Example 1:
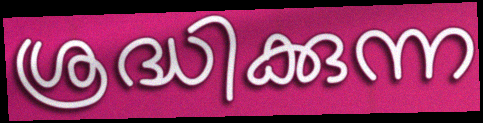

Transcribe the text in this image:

ശ്രദ്ധിക്കുന്ന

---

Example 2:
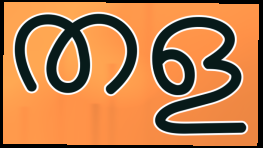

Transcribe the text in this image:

തള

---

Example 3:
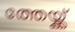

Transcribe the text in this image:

ത്തേയ്ക്ക്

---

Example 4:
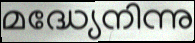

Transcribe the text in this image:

മദ്ധ്യേനിന്നു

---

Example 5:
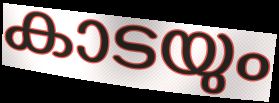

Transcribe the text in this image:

കാടയും